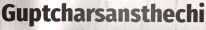
Guptcharsansthechi